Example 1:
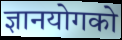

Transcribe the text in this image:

ज्ञानयोगको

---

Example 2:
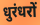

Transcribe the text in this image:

धुरंधरों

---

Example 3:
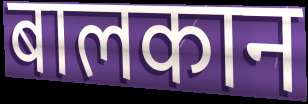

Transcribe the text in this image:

बालकान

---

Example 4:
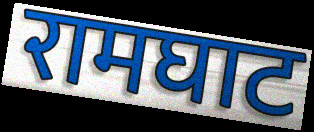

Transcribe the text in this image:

रामघाट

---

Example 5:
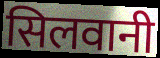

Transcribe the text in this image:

सिलवानी